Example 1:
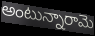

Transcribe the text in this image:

అంటున్నారామె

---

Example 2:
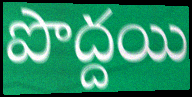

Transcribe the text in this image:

పొద్దయి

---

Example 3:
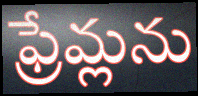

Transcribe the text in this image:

ఫ్రేమ్లను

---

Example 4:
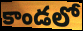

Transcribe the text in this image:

కాండలో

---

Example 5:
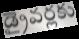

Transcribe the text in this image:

డ్రైవర్లకు